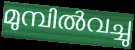
മുമ്പിൽവച്ചു